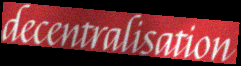
decentralisation